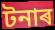
টনাৰ